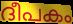
ദീപകം